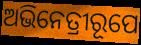
ଅଭିନେତ୍ରୀରୂପେ